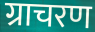
ग्राचरण